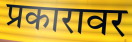
प्रकारावर